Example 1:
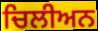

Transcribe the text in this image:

ਚਿਲੀਅਨ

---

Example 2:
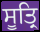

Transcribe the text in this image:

ਸੂਤ੍ਰਿ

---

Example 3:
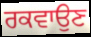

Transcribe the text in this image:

ਰਕਵਾਉਣ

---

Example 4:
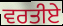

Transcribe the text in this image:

ਵਰਤੀਏ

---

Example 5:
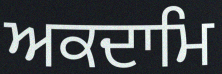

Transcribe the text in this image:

ਅਕਦਾਮਿ